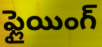
ఫ్లైయింగ్